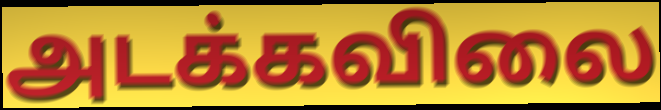
அடக்கவிலை